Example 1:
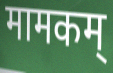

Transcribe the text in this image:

मामकम्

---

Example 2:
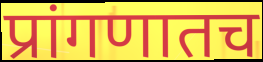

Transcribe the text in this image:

प्रांगणातच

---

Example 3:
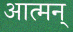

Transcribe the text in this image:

आत्मन्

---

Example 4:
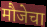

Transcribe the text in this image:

मौजेचा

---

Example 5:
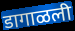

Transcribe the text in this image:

डागाळली